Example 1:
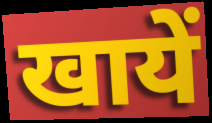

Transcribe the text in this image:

खायें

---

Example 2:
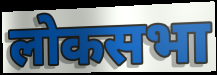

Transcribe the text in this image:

लोकसभा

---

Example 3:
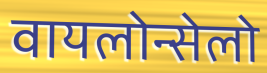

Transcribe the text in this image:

वायलोन्सेलो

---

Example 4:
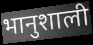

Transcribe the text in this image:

भानुशाली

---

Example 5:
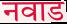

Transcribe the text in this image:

नवाड